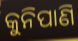
କୁନିପାଣି